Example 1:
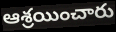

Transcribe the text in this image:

ఆశ్రయించారు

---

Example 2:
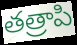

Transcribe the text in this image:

తత్రాపి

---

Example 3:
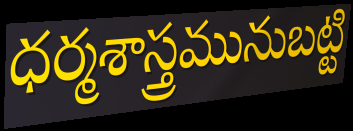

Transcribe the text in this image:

ధర్మశాస్త్రమునుబట్టి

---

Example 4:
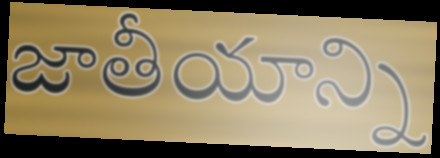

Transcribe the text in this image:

జాతీయాన్ని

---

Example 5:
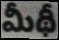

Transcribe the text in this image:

మీథీ